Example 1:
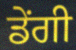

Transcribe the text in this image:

ਡੇਂਗੀ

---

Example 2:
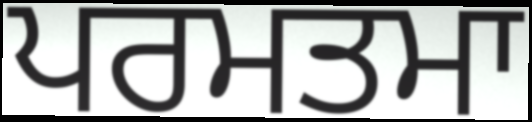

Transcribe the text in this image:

ਪਰਮਤਮਾ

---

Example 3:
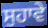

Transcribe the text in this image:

ਸੁਹਾਵੇ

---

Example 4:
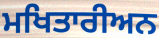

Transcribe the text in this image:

ਮਖਿਤਾਰੀਅਨ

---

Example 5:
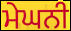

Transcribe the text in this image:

ਮੇਘਨੀ